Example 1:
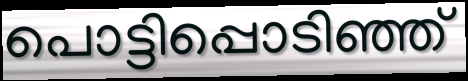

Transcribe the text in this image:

പൊട്ടിപ്പൊടിഞ്ഞ്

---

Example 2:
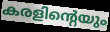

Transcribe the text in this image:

കരളിന്റെയും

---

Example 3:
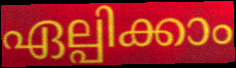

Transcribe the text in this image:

ഏല്പിക്കാം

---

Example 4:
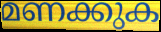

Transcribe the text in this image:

മണക്കുക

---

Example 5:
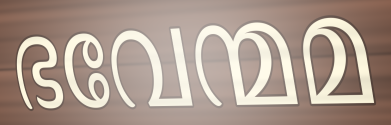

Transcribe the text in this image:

ഭവേന്മമ